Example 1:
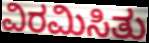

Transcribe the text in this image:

ವಿರಮಿಸಿತು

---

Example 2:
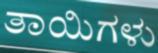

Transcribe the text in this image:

ತಾಯಿಗಳು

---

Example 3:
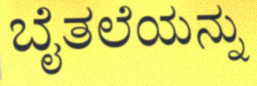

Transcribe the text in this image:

ಬೈತಲೆಯನ್ನು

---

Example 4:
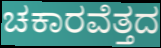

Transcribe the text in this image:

ಚಕಾರವೆತ್ತದ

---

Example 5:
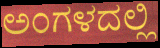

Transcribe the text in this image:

ಅಂಗಳದಲ್ಲಿ